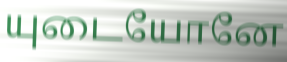
யுடையோனே